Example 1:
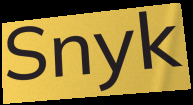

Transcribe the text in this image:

Snyk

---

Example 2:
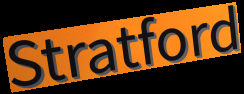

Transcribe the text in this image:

Stratford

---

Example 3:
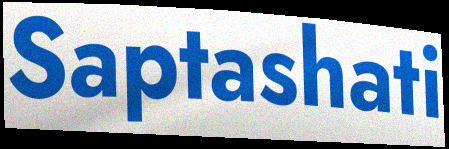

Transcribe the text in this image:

Saptashati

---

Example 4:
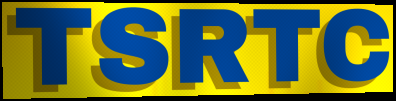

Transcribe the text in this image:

TSRTC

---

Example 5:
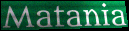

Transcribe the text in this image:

Matania